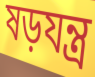
ষড়যন্ত্ৰ